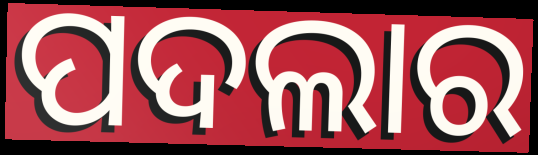
ପଦଲାର